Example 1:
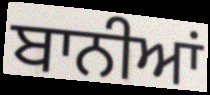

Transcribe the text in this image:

ਬਾਨੀਆਂ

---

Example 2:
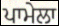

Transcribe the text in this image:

ਪਾਮੇਲਾ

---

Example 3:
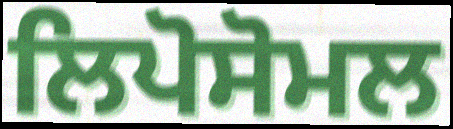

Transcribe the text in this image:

ਲਿਪੋਸੋਮਲ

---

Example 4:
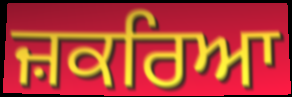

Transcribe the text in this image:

ਜ਼ਕਰਿਆ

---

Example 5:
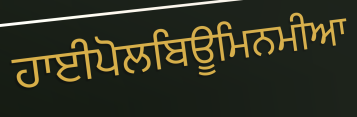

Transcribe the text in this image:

ਹਾਈਪੋਲਬਿਊਮਿਨਮੀਆ